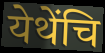
येथेंचि